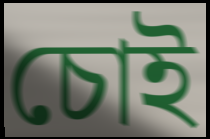
চোই